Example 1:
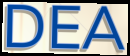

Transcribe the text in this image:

DEA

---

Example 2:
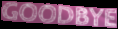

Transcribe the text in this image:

GOODBYE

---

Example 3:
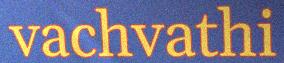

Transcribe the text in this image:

vachvathi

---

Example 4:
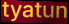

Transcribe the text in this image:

tyatun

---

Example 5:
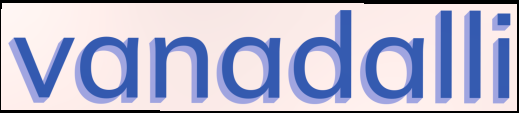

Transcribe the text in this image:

vanadalli